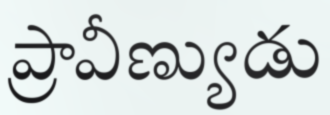
ప్రావీణ్యుడు